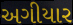
અગીયાર